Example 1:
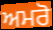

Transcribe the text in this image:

ਅਮਰੋ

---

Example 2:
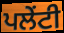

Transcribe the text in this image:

ਪਲੇਂਟੀ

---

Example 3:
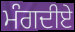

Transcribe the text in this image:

ਮੰਗਦੀਏ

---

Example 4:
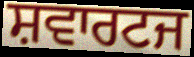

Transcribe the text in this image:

ਸ਼ਵਾਰਟਜ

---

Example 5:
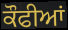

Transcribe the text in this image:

ਕੌਫੀਆਂ